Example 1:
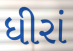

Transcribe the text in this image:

ધીરાં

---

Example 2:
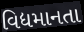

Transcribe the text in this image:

વિદ્યમાનતા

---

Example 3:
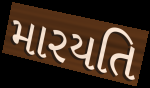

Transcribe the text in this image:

મારયતિ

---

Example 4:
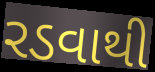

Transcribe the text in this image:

રડવાથી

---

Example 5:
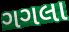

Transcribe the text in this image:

ગગલા